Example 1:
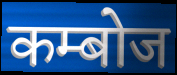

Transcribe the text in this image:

कम्बोज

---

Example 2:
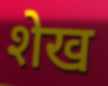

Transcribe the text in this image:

शेख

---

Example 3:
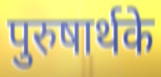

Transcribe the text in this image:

पुरुषार्थके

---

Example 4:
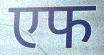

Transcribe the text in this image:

एफ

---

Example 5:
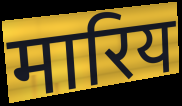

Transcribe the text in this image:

मारिय